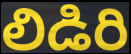
లిడిరి